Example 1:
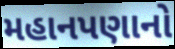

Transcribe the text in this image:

મહાનપણાનો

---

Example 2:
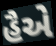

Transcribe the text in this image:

હૈએ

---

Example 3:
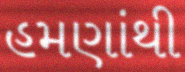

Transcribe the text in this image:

હમણાંથી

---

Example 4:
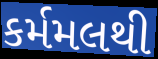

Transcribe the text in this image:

કર્મમલથી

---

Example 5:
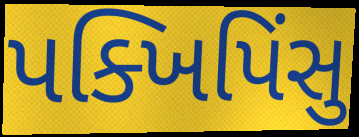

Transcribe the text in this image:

પક્ખિપિંસુ